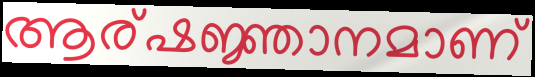
ആര്ഷജ്ഞാനമാണ്